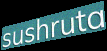
sushruta